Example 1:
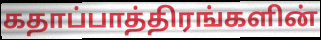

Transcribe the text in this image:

கதாப்பாத்திரங்களின்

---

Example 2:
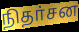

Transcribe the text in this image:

நிதர்சன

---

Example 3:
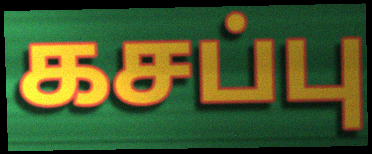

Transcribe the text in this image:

கசப்பு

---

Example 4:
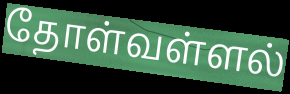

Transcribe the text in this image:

தோள்வள்ளல்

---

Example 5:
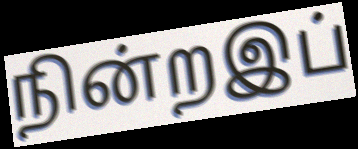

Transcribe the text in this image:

நின்றஇப்